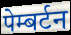
पेम्बर्टन